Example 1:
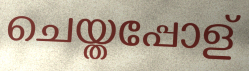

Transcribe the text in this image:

ചെയ്തപ്പോള്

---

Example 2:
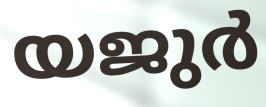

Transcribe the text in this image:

യജുർ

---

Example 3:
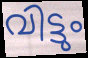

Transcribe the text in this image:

വിട്ടും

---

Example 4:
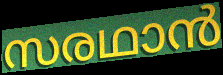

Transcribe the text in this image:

സരഥാൻ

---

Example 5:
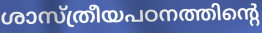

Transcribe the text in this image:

ശാസ്ത്രീയപഠനത്തിന്റെ